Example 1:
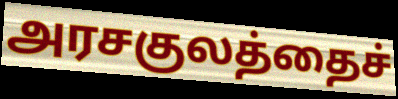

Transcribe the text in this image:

அரசகுலத்தைச்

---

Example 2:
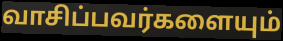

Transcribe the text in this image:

வாசிப்பவர்களையும்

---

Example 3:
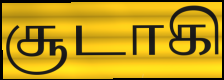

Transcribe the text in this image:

சூடாகி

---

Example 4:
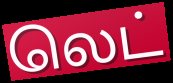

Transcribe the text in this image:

லெட்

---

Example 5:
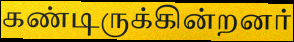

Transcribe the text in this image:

கண்டிருக்கின்றனர்